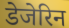
डेजेरिन